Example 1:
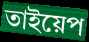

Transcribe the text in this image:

তাইয়েপ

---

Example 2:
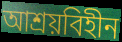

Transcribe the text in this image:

আশ্রয়বিহীন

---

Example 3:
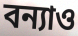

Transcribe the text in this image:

বন্যাও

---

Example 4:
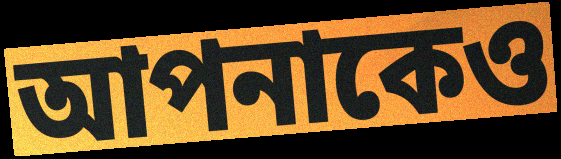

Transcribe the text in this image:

আপনাকেও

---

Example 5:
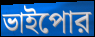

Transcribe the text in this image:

ভাইপোর